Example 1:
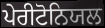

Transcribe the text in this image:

ਪੇਰੀਟੋਨਿਯਲ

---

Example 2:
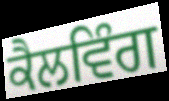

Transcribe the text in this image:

ਕੈਲਵਿੰਗ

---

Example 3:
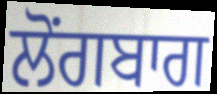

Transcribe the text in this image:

ਲੋਂਗਬਾਗ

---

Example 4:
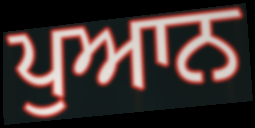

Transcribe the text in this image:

ਪੁਆਨ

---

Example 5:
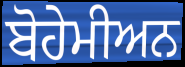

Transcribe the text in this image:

ਬੋਹੇਮੀਅਨ